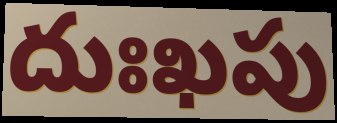
దుఃఖపు